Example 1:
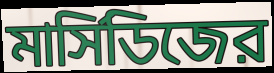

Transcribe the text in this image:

মার্সিডিজের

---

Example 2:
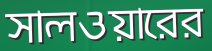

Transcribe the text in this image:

সালওয়ারের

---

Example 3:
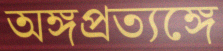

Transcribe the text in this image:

অঙ্গপ্রত্যঙ্গে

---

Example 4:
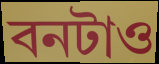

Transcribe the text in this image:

বনটাও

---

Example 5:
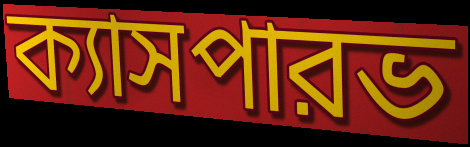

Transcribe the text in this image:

ক্যাসপারভ